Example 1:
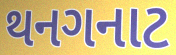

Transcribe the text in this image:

થનગનાટ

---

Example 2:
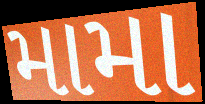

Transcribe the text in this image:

મામા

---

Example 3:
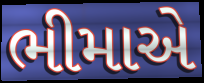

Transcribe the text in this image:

ભીમાએ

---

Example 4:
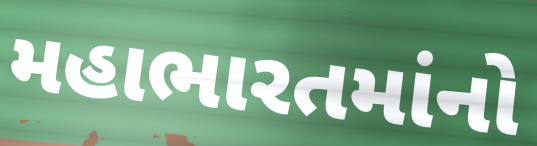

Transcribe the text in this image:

મહાભારતમાંનો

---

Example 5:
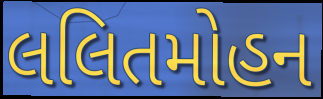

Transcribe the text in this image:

લલિતમોહન